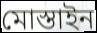
মোস্তাইন